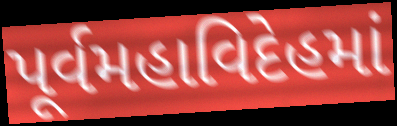
પૂર્વમહાવિદેહમાં